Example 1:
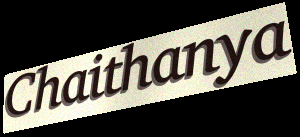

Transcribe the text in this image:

Chaithanya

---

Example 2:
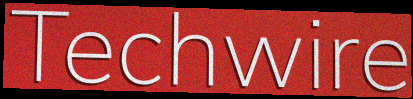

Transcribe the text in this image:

Techwire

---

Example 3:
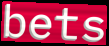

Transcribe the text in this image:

bets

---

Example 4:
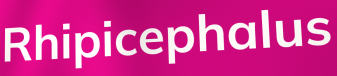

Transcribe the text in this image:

Rhipicephalus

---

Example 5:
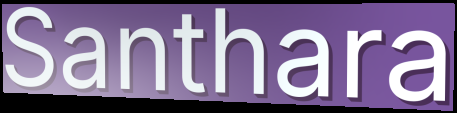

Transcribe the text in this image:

Santhara